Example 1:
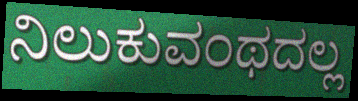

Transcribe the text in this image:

ನಿಲುಕುವಂಥದಲ್ಲ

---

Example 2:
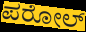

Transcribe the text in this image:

ಪರೋಲ್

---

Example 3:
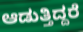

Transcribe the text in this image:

ಆಡುತ್ತಿದ್ದರೆ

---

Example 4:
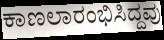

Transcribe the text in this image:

ಕಾಣಲಾರಂಭಿಸಿದ್ದವು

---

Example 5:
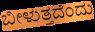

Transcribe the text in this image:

ಬೀಳುತ್ತದೆಂದು